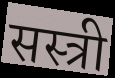
सस्त्री